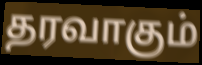
தரவாகும்